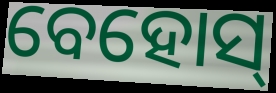
ବେହୋସ୍